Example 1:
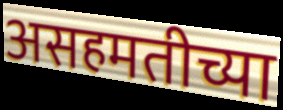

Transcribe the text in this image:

असहमतीच्या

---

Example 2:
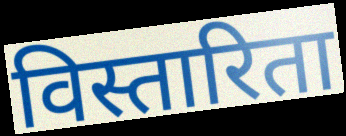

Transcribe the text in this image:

विस्तारिता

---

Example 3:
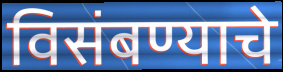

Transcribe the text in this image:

विसंबण्याचे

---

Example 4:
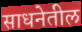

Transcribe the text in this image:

साधनेतील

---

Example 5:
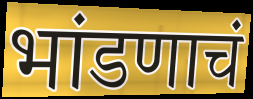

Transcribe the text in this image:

भांडणाचं